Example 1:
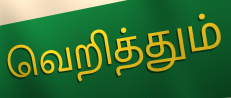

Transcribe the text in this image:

வெறித்தும்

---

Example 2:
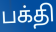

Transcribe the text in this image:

பக்தி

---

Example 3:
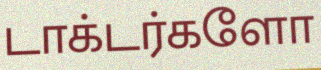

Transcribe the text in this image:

டாக்டர்களோ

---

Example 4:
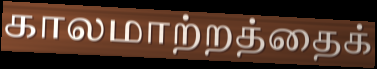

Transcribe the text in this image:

காலமாற்றத்தைக்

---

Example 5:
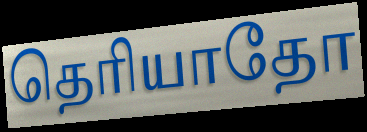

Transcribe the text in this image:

தெரியாதோ